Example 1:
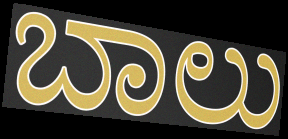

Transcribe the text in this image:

ಬಾಲು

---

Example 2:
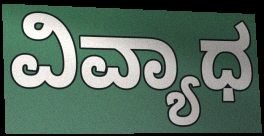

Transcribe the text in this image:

ವಿವ್ಯಾಧ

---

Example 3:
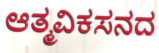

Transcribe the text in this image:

ಆತ್ಮವಿಕಸನದ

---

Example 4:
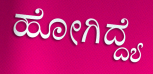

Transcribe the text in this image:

ಹೋಗಿದ್ದ್ಯೆ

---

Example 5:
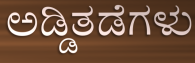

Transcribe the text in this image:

ಅಡ್ಡಿತಡೆಗಳು